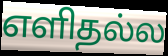
எளிதல்ல